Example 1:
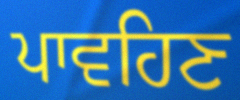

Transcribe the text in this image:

ਪਾਵਹਿਣ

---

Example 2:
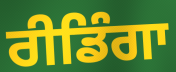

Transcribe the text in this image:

ਰੀਡਿੰਗਾ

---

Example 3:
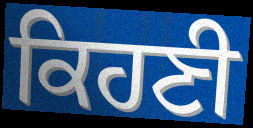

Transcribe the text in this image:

ਕਿਹਣੀ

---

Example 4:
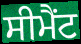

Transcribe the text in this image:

ਸੀਮੈਂਟ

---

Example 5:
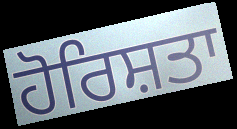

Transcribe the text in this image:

ਹੋਰਿਸ਼ਤਾ